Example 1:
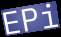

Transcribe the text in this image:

EPi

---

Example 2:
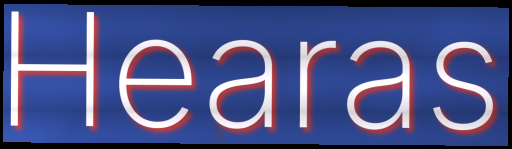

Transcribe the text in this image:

Hearas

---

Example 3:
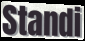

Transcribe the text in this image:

Standi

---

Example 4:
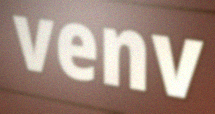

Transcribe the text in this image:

venv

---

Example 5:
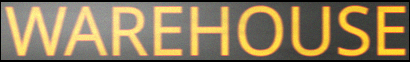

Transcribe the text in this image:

WAREHOUSE